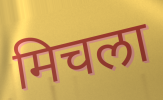
मिचला